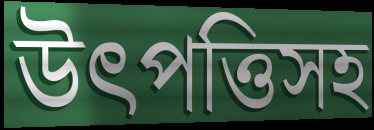
উৎপত্তিসহ